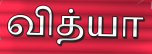
வித்யா